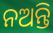
ନଅନ୍ତି